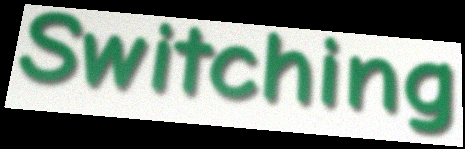
Switching